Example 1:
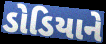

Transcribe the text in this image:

ડોડિયાને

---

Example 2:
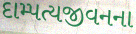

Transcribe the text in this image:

દામ્પત્યજીવનના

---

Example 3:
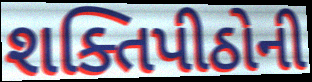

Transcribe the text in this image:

શક્તિપીઠોની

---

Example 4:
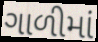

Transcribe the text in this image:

ગાળીમાં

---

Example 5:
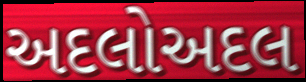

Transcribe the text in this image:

અદલોઅદલ